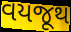
વયજૂથ